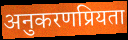
अनुकरणप्रियता